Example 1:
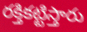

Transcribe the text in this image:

రక్తికట్టిస్తారు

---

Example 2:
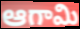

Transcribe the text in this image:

ఆగామి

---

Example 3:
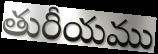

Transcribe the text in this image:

తురీయము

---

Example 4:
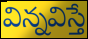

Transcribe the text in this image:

విన్నవిస్తే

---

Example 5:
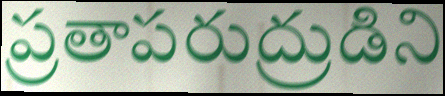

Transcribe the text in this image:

ప్రతాపరుద్రుడిని